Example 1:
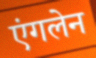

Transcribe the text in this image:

एंगलेन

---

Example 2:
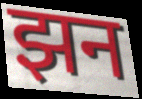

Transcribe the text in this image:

झन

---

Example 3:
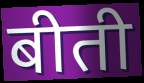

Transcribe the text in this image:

बीती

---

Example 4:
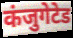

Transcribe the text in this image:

कंजुगेटेड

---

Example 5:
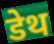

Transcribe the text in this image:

डेथ